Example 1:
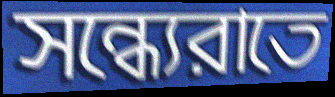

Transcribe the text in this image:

সন্ধ্যেরাতে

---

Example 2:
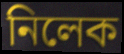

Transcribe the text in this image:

নিলেক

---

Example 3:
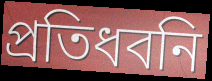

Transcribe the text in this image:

প্রতিধবনি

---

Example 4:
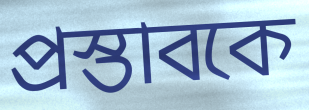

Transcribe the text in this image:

প্রস্তাবকে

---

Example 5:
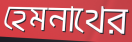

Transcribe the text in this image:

হেমনাথের